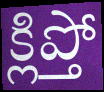
క్లిప్తో